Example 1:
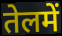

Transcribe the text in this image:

तेलमें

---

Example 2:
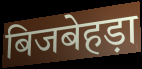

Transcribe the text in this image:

बिजबेहड़ा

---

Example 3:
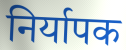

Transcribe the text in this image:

निर्यापक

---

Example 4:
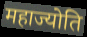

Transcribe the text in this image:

महाज्योति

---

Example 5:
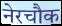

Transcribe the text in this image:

नेरचौक